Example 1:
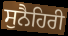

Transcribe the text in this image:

ਸੁਨੈਹਿਰੀ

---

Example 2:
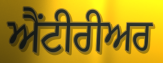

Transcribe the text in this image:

ਐਂਟੀਰੀਅਰ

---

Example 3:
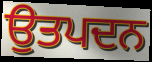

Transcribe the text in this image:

ਉਤਪਦਨ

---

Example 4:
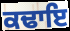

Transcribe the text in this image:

ਕਢਾਇ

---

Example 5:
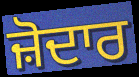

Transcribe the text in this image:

ਜ਼ੋਦਾਰ